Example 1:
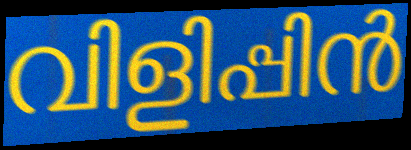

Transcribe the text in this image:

വിളിപ്പിൻ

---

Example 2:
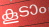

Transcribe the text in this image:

കൂടാം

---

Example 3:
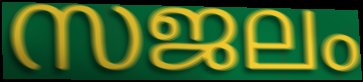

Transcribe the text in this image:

സജലം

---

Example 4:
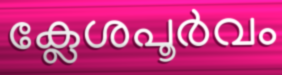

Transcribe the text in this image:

ക്ലേശപൂർവം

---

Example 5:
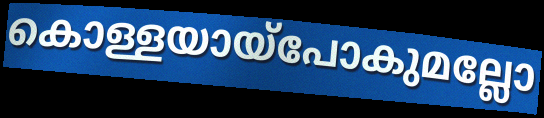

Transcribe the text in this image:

കൊള്ളയായ്പോകുമല്ലോ